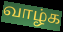
வாழ்க